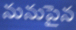
నునుపైన